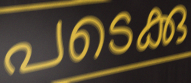
പടെക്കു